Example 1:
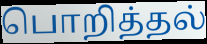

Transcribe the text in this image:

பொறித்தல்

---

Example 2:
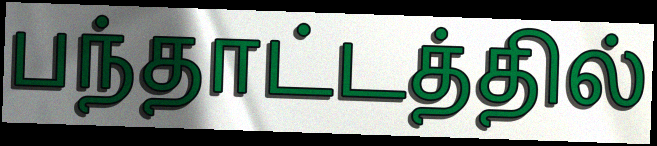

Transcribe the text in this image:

பந்தாட்டத்தில்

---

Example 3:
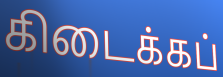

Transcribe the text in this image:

கிடைக்கப்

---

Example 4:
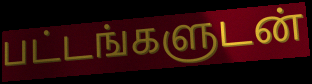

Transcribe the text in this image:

பட்டங்களுடன்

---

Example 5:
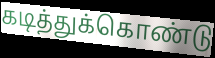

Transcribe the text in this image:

கடித்துக்கொண்டு